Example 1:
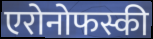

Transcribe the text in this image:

एरोनोफस्की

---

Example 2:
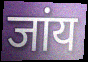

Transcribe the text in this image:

जांय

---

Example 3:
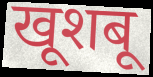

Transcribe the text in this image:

खूशबू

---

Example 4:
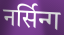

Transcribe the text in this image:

नर्सिन्ग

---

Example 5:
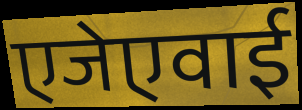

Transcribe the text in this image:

एजेएवाई